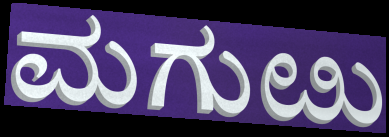
ಮಗುೞು